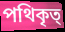
পথিকৃত্